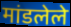
मांडलेले